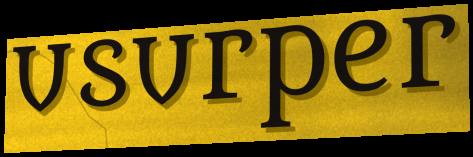
usurper